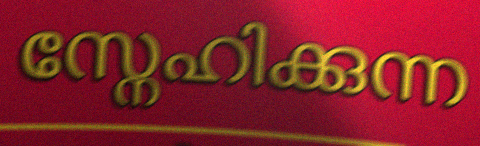
സ്നേഹിക്കുന്ന